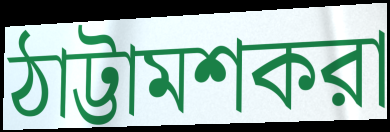
ঠাট্টামশকরা